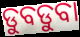
ଡୁବଡୁବା